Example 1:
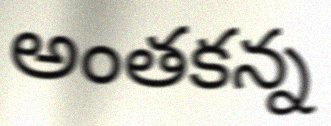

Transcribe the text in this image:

అంతకన్న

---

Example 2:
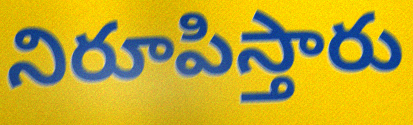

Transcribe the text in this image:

నిరూపిస్తారు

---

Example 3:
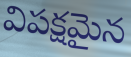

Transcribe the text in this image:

విపక్షమైన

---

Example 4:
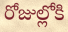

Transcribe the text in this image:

రోజుల్లోకి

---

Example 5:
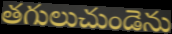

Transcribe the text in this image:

తగులుచుండెను